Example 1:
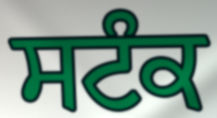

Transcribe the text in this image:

ਸਟੰਕ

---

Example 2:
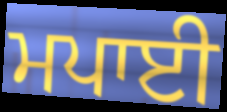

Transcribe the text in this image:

ਮਪਾਈ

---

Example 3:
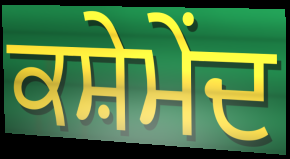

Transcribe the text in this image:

ਕਸ਼ੇਮੇਂਦ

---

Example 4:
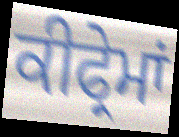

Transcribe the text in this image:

ਕੀਫ੍ਰੇਮਾਂ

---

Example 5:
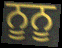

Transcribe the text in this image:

ਨੂਨੂ